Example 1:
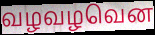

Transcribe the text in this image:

வழவழவென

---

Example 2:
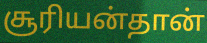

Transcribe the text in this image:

சூரியன்தான்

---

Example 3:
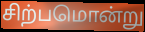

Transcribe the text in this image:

சிற்பமொன்று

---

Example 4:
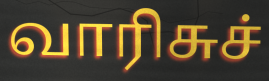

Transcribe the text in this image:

வாரிசுச்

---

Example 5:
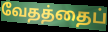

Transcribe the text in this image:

வேதத்தைப்